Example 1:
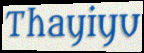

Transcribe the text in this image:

Thayiyu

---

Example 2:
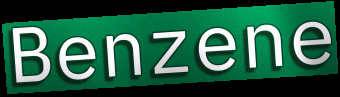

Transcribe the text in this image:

Benzene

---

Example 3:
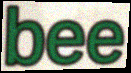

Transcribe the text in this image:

bee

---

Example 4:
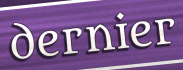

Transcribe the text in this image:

dernier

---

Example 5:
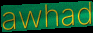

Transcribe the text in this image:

awhad